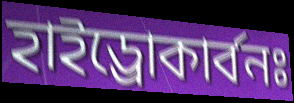
হাইড্রোকার্বনঃ